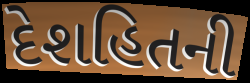
દેશહિતની